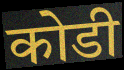
कोडी